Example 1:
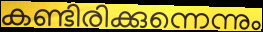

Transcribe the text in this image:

കണ്ടിരിക്കുന്നെന്നും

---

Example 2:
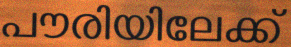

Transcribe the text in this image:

പൗരിയിലേക്ക്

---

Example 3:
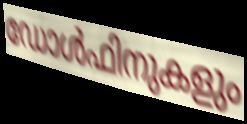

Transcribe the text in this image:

ഡോൾഫിനുകളും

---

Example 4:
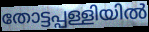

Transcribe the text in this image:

തോട്ടപ്പള്ളിയിൽ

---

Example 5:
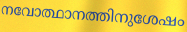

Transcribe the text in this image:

നവോത്ഥാനത്തിനുശേഷം